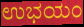
ಉಭಯಂ